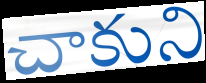
చాకుని